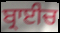
ਬ੍ਰਾਈਚ